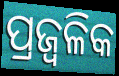
ପ୍ରଜ୍ଵଳିକ